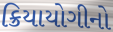
ક્રિયાયોગીનો